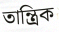
তান্ত্ৰিক